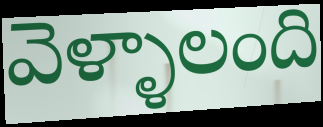
వెళ్ళాలంది